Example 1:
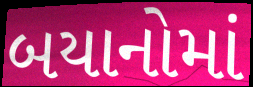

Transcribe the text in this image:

બયાનોમાં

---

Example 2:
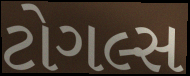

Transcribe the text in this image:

ટોગલ્સ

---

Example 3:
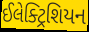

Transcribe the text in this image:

ઈલેક્ટ્રિશિયન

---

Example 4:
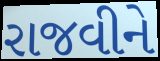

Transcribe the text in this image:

રાજવીને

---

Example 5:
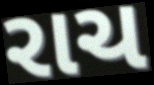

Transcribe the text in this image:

રાચ